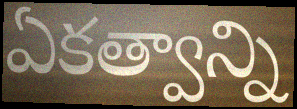
ఏకత్వాన్ని